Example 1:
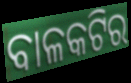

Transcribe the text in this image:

ବାଳକଟିର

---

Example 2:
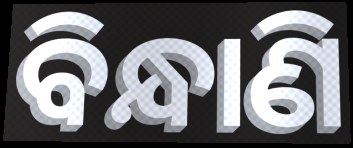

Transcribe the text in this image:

ବିନ୍ଧାଣି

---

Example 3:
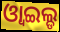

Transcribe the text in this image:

ଓ୍ବାଇଲ୍ଡ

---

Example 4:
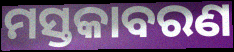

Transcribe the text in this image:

ମସ୍ତକାବରଣ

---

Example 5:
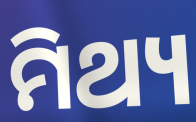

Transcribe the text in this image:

ମିଥ୍ୟ